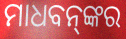
ମାଧବନ୍‌ଙ୍କର